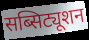
सब्सिट्यूशन